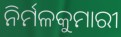
ନିର୍ମଳକୁମାରୀ